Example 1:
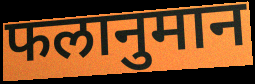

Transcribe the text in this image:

फलानुमान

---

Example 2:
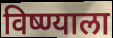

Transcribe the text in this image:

विष्ण्याला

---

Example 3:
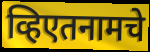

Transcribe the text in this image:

व्हिएतनामचे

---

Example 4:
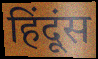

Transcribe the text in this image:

हिंदूंस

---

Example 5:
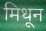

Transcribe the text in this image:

मिथून